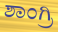
ಶಾಂಗ್ರಿ